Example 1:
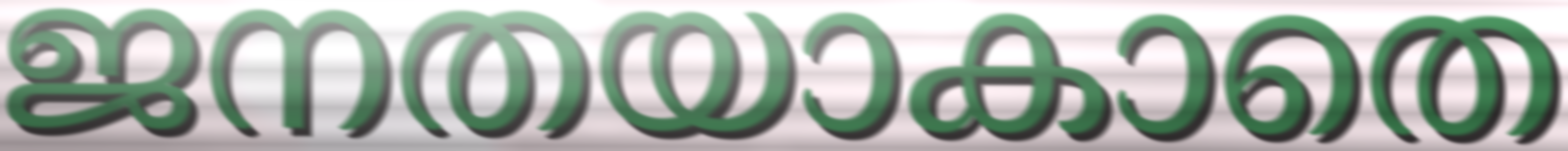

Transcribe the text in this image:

ജനതയാകാതെ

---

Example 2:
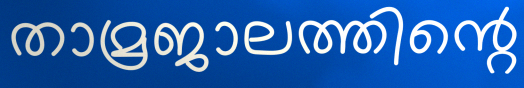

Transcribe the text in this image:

താമ്രജാലത്തിന്റെ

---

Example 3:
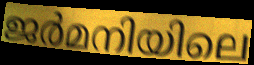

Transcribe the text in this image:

ജർമനിയിലെ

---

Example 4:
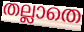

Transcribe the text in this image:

തല്ലാതെ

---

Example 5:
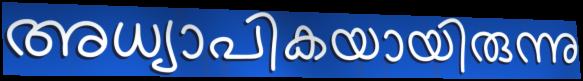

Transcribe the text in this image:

അധ്യാപികയായിരുന്നു